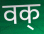
वक्